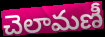
చెలామణీ